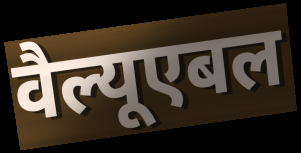
वैल्यूएबल